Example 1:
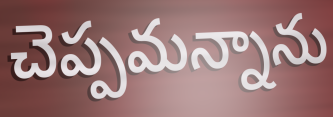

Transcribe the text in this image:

చెప్పమన్నాను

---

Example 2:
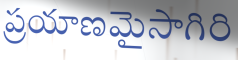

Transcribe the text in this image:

ప్రయాణమైసాగిరి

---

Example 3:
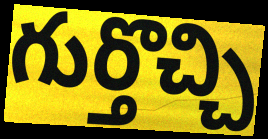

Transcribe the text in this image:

గుర్తొచ్చి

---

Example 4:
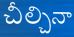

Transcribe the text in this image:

చీల్చినా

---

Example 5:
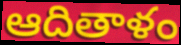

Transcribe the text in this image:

ఆదితాళం